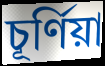
চূর্ণিয়া